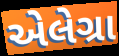
એલેગ્રા